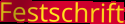
Festschrift